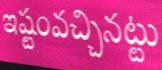
ఇష్టంవచ్చినట్టు